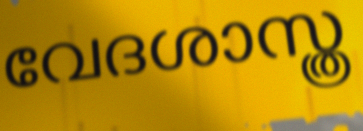
വേദശാസ്ത്ര